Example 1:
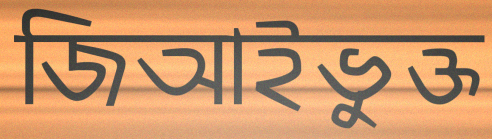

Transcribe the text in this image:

জিআইভুক্ত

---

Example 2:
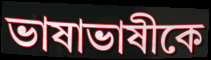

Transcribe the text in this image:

ভাষাভাষীকে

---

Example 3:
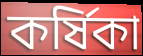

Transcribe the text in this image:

কর্ষিকা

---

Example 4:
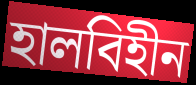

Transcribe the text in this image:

হালবিহীন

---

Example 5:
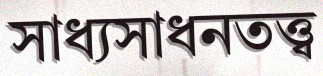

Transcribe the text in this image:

সাধ্যসাধনতত্ত্ব